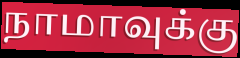
நாமாவுக்கு